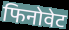
फिनोवेट